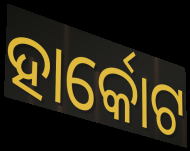
ହାର୍କୋଟ